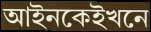
আইনকেইখনে